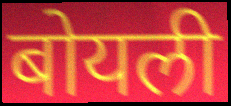
बोयली